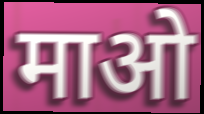
माओ